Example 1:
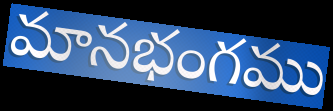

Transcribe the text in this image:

మానభంగము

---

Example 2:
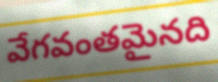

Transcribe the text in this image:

వేగవంతమైనది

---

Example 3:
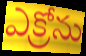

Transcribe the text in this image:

ఎక్రోను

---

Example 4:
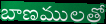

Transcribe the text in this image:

బాణములతో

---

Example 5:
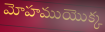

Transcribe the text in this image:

మోహముయొక్క